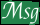
Msg